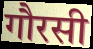
गौरसी